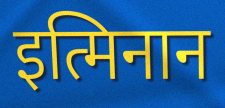
इत्मिनान